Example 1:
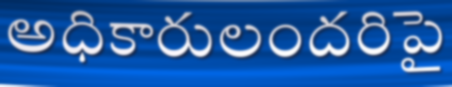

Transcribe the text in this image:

అధికారులందరిపై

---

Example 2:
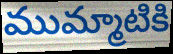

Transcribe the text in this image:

ముమ్మాటికి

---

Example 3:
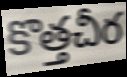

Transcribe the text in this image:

కొత్తచీర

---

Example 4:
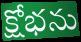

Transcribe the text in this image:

క్షోభను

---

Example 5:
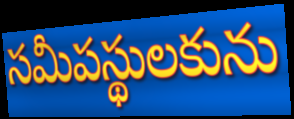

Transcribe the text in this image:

సమీపస్థులకును